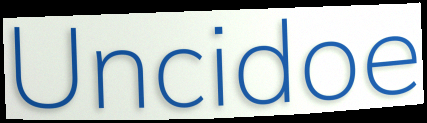
Uncidoe